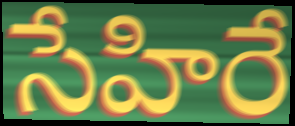
సేహిరే